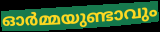
ഓർമ്മയുണ്ടാവും